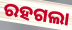
ରହଗଲା